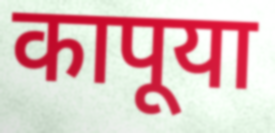
कापूया